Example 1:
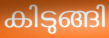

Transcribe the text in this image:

കിടുങ്ങി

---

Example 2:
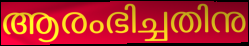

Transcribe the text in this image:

ആരംഭിച്ചതിനു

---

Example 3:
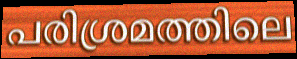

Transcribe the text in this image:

പരിശ്രമത്തിലെ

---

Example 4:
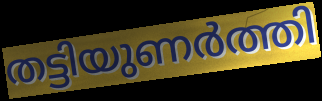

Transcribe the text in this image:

തട്ടിയുണർത്തി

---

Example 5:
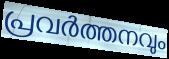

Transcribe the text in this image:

പ്രവർത്തനവും